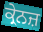
ਕ੍ਰੇਨਜ਼